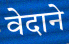
वेदाने